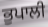
ਭੁਪਾਲੀ